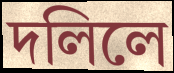
দলিলে